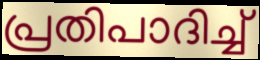
പ്രതിപാദിച്ച്